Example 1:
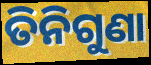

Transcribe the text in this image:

ତିନିଗୁଣା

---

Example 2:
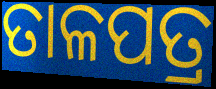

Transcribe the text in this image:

ତାଳପତ୍ର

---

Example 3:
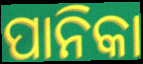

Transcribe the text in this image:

ପାନିକା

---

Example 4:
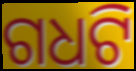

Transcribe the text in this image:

ଗଧଟି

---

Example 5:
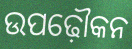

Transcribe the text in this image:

ଉପଢ଼ୌକନ